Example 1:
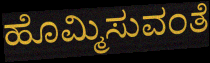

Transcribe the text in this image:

ಹೊಮ್ಮಿಸುವಂತೆ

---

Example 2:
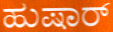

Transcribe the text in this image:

ಹುಷಾರ್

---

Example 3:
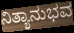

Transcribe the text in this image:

ನಿತ್ಯಾನುಭವ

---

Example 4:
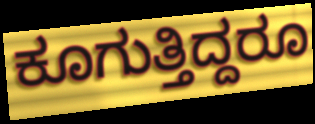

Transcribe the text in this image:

ಕೂಗುತ್ತಿದ್ದರೂ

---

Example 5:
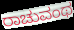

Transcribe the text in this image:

ರಾಚುವಂಥ